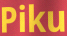
Piku